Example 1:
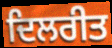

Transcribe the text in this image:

ਦਿਲਰੀਤ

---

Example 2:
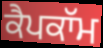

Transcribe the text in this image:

ਕੈਪਕਾੱਮ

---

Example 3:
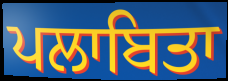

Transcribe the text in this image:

ਪਲਾਬਿਤਾ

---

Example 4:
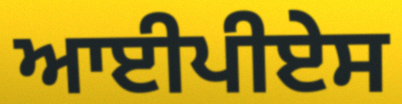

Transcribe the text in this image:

ਆਈਪੀਏਸ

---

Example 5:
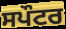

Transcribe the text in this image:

ਸਪੌਟਰ